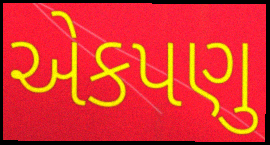
એકપણુ